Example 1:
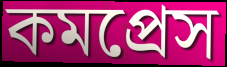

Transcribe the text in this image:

কমপ্রেস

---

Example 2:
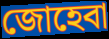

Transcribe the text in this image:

জোহেবা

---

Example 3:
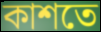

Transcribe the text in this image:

কাশতে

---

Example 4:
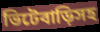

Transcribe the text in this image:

ভিটেবাড়িসহ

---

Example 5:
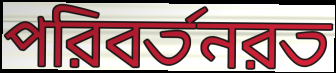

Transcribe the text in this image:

পরিবর্তনরত